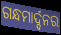
ଗନ୍ଧମାର୍ଦ୍ଦନର